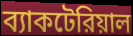
ব্যাকটেরিয়াল